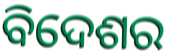
ବିଦେଶର